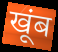
खूंब